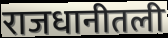
राजधानीतली